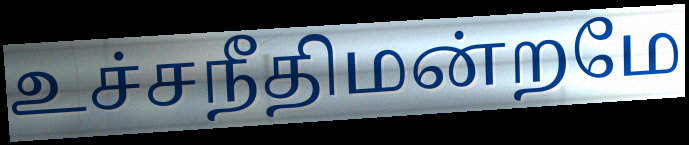
உச்சநீதிமன்றமே